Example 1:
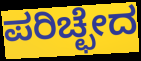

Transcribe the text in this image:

ಪರಿಚ್ಛೇದ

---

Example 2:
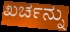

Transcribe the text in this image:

ಖರ್ಚನ್ನು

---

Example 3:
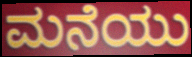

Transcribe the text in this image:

ಮನೆಯು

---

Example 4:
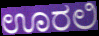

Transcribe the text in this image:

ಊರಲಿ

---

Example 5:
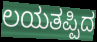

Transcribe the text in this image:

ಲಯತಪ್ಪಿದ